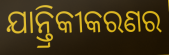
ଯାନ୍ତ୍ରିକୀକରଣର